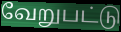
வேறுபட்டு